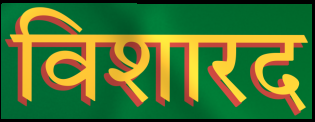
विशारद